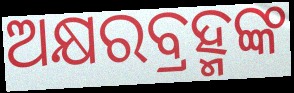
ଅକ୍ଷରବ୍ରହ୍ମଙ୍କ